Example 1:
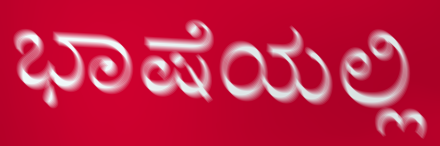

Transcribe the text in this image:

ಭಾಷೆಯಲ್ಲಿ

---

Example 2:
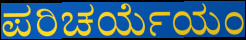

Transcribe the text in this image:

ಪರಿಚರ್ಯೆಯಂ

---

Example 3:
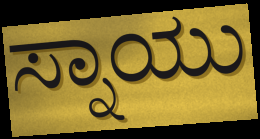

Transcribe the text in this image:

ಸ್ನಾಯು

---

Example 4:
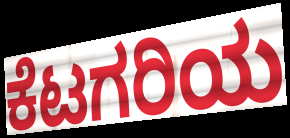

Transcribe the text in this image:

ಕೆಟಗರಿಯ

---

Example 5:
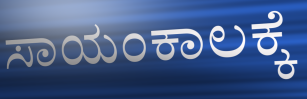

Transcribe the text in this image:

ಸಾಯಂಕಾಲಕ್ಕೆ